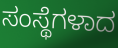
ಸಂಸ್ಥೆಗಳಾದ